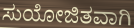
ಸುಯೋಜಿತವಾಗಿ